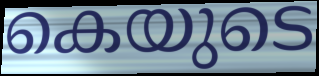
കെയുടെ